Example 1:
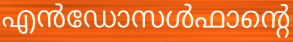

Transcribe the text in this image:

എൻഡോസൾഫാന്റെ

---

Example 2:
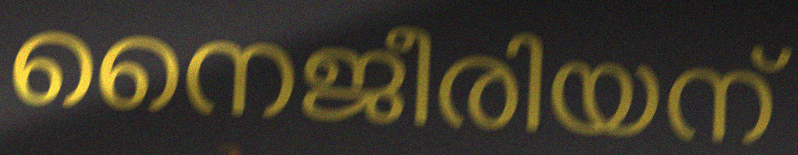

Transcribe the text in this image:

നൈജീരിയന്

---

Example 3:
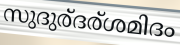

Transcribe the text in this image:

സുദുര്ദര്ശമിദം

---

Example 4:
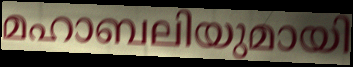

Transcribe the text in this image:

മഹാബലിയുമായി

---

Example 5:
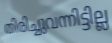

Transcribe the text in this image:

തിരിച്ചുവന്നിട്ടില്ല